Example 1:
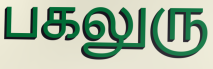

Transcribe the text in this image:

பகலுரு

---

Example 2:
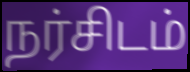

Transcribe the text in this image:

நர்சிடம்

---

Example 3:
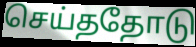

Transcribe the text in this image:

செய்ததோடு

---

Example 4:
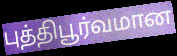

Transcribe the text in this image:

புத்திபூர்வமான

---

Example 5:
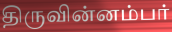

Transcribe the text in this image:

திருவின்னம்பர்